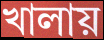
খালায়